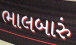
ભાલબારું